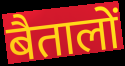
बैतालों